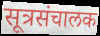
सूत्रसंचालक